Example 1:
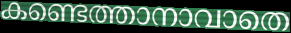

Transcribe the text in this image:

കണ്ടെത്താനാവാതെ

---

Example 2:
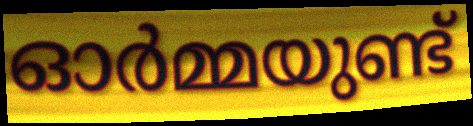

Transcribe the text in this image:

ഓർമ്മയുണ്ട്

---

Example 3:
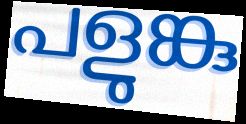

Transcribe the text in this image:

പളുങ്കു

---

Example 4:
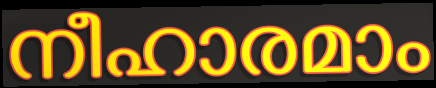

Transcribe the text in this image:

നീഹാരമാം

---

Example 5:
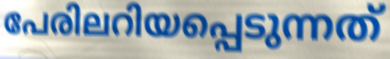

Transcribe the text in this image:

പേരിലറിയപ്പെടുന്നത്